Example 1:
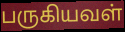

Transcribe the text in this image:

பருகியவள்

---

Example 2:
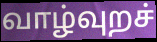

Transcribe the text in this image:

வாழ்வுறச்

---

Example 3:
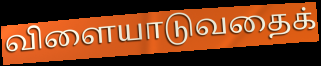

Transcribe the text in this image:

விளையாடுவதைக்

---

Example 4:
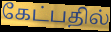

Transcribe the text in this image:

கேட்பதில்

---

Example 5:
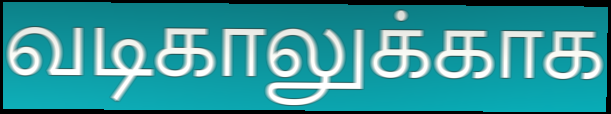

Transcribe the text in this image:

வடிகாலுக்காக